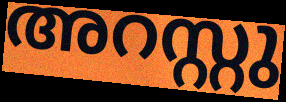
അറസ്റ്റു